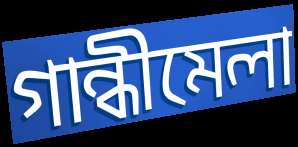
গান্ধীমেলা